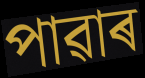
পাৱাৰ